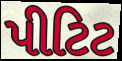
પીટિટ